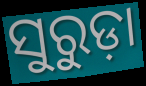
ସୁରୁଡ଼ା